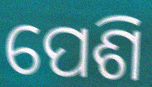
ପେଶି